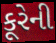
કૂરેની